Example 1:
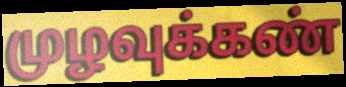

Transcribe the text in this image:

முழவுக்கண்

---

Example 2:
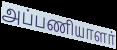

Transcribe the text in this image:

அப்பணியாளர்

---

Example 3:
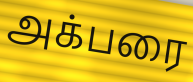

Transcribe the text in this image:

அக்பரை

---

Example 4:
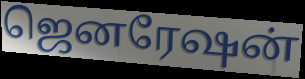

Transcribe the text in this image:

ஜெனரேஷன்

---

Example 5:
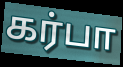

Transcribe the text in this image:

கர்பா